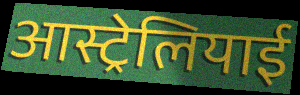
आस्ट्रेलियाई